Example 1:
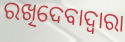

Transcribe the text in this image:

ରଖିଦେବାଦ୍ୱାରା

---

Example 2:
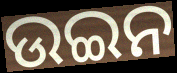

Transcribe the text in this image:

ଉଇନ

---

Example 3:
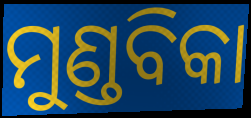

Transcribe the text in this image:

ମୁଣ୍ଡବିକା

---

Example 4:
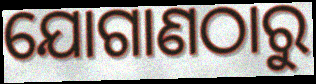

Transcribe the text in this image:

ଯୋଗାଣଠାରୁ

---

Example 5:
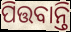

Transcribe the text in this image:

ପିତ୍ତବାନ୍ତି